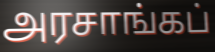
அரசாங்கப்